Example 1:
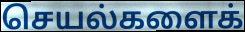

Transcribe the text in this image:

செயல்களைக்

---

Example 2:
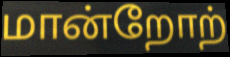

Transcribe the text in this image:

மான்றோற்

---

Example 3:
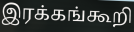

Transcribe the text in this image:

இரக்கங்கூறி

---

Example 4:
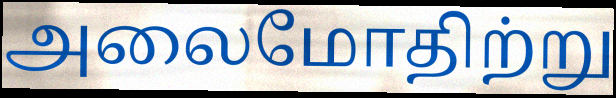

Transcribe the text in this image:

அலைமோதிற்று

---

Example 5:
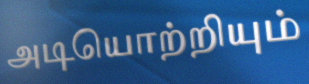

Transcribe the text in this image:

அடியொற்றியும்